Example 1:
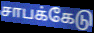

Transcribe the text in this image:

சாபக்கேடு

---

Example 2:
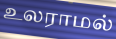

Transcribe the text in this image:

உலராமல்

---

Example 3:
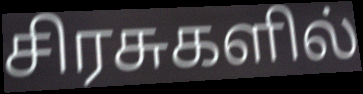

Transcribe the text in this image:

சிரசுகளில்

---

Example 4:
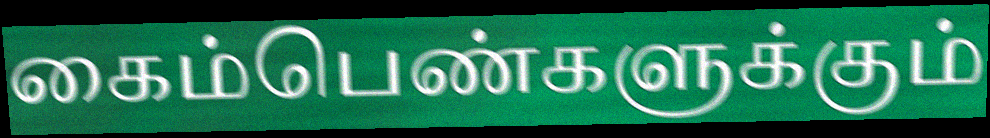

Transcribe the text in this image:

கைம்பெண்களுக்கும்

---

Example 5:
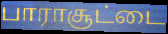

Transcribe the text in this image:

பாராசூட்டை